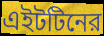
এইটটিনের